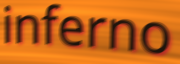
inferno